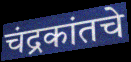
चंद्रकांतचे